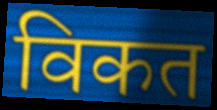
विकत